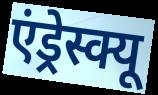
एंड्रेस्क्यू